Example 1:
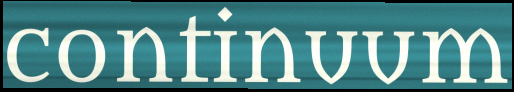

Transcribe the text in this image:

continuum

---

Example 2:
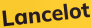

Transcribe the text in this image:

Lancelot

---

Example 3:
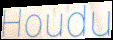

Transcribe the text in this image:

Houdu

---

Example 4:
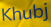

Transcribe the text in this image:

Khubj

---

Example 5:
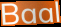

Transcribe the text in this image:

Baal